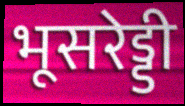
भूसरेड्डी